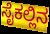
ಸೈಕಲ್ಲಿನ